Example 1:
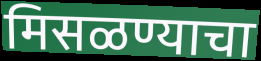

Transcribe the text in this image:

मिसळण्याचा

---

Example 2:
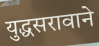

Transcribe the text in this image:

युद्धसरावाने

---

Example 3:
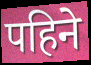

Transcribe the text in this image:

पहिने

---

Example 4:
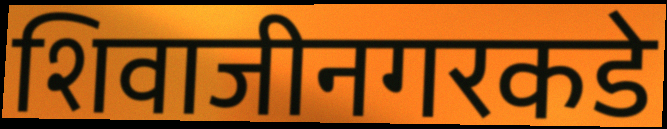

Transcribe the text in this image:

शिवाजीनगरकडे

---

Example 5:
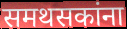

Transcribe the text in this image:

समथसकांना